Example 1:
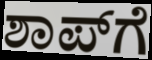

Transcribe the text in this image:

ಶಾಪ್‌ಗೆ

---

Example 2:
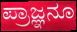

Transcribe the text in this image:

ಪ್ರಾಜ್ಞನೂ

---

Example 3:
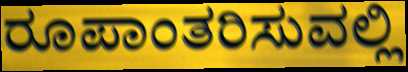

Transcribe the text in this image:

ರೂಪಾಂತರಿಸುವಲ್ಲಿ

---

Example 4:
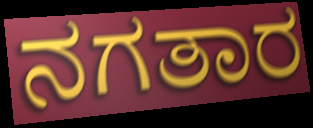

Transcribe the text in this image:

ನಗತಾರ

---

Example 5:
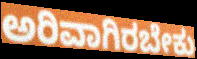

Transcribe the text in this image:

ಅರಿವಾಗಿರಬೇಕು